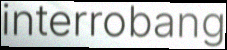
interrobang